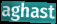
aghast